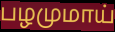
பழமுமாய்